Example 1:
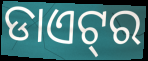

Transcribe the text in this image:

ଡାଏଟ୍‌ର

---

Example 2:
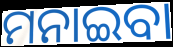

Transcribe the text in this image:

ମନାଇବା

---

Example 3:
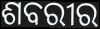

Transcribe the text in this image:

ଶବରୀର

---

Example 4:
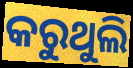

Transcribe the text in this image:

କରୁଥୁଲି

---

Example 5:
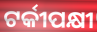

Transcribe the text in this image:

ଟର୍କୀପକ୍ଷୀ